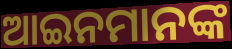
ଆଇନମାନଙ୍କ